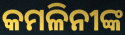
କମଳିନୀଙ୍କ